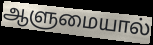
ஆளுமையால்